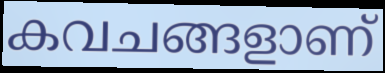
കവചങ്ങളാണ്